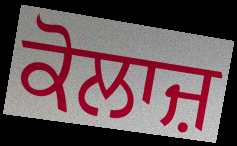
ਕੋਲਾਜ਼